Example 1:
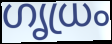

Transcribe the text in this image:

ഗൃധ്രം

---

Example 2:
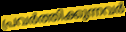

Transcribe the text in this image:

പ്രവർത്തിക്കുന്നവർ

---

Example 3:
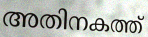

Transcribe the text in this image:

അതിനകത്ത്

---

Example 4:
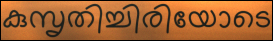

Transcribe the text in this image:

കുസൃതിച്ചിരിയോടെ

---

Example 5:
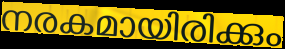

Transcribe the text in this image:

നരകമായിരിക്കും